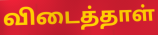
விடைத்தாள்